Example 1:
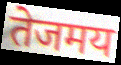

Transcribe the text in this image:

तेजमय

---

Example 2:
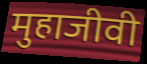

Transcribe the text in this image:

मुहाजीवी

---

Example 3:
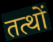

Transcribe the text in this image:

तत्थों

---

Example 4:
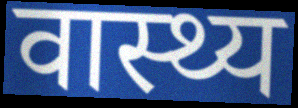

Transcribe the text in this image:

वास्थ्य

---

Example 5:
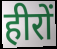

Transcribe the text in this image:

हीरों